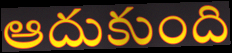
ఆదుకుంది